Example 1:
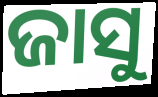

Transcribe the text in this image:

ଜାସୁ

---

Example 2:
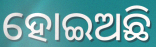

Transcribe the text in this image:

ହୋଇଅଛି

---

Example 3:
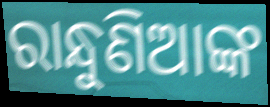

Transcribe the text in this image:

ରାନ୍ଧୁଣିଆଙ୍କ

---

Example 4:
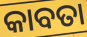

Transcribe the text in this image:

କାବତା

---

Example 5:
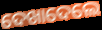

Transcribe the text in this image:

ଦେଖାଦେଲେ